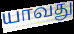
யாவது